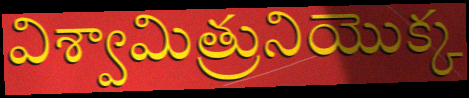
విశ్వామిత్రునియొక్క